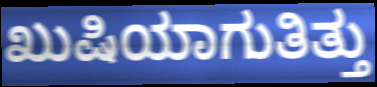
ಖುಷಿಯಾಗುತಿತ್ತು